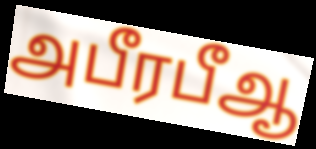
அபீரபீஆ